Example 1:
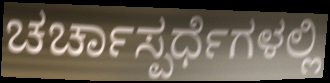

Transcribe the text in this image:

ಚರ್ಚಾಸ್ಪರ್ಧೆಗಳಲ್ಲಿ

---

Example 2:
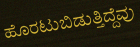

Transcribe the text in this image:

ಹೊರಟುಬಿಡುತ್ತಿದ್ದೆವು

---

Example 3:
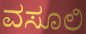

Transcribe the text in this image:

ವಸೂಲಿ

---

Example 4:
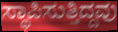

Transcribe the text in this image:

ಸ್ಥಾಪಿಸುತ್ತಿದ್ದವು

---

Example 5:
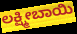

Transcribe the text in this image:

ಲಕ್ಷ್ಮೀಬಾಯಿ